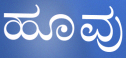
ಹೂವು